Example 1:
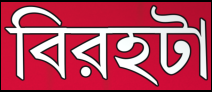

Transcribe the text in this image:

বিরহটা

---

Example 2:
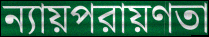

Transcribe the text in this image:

ন্যায়পরায়ণতা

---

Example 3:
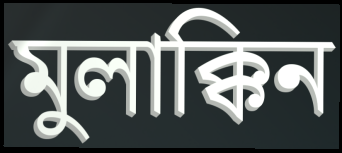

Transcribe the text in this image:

মুলাক্কিন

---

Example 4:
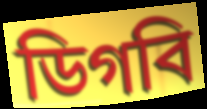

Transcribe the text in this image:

ডিগবি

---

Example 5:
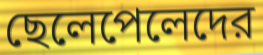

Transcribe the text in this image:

ছেলেপেলেদের